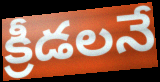
క్రీడలనే